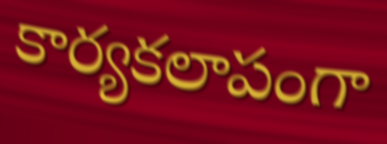
కార్యకలాపంగా